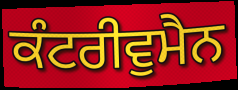
ਕੰਟਰੀਵੁਮੈਨ